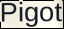
Pigot